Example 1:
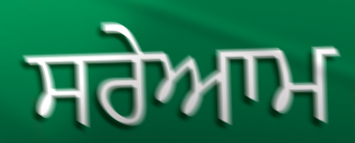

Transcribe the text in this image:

ਸਰੇਆਮ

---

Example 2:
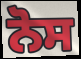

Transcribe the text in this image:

ਨੋਸ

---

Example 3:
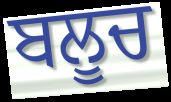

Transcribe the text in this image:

ਬਲੂਚ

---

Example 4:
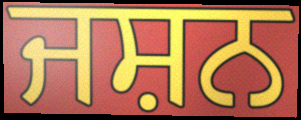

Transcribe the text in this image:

ਜਸ਼ਨ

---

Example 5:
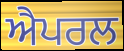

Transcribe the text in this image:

ਐਪਰਲ